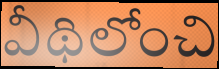
వీథిలోంచి